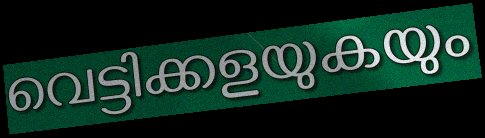
വെട്ടിക്കളയുകയും